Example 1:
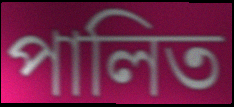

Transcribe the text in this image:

পালিত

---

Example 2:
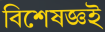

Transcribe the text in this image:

বিশেষজ্ঞই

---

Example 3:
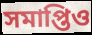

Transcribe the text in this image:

সমাপ্তিও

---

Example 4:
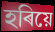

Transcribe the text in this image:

হৰিয়ে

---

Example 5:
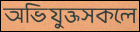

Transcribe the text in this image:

অভিযুক্তসকলে